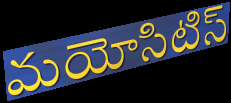
మయోసిటిస్